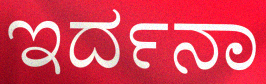
ಇರ್ದನಾ